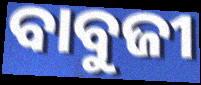
ବାବୁଜୀ